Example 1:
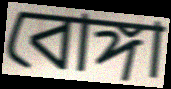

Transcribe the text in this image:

বোঙ্গা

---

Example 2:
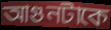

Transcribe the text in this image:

আগুনটাকে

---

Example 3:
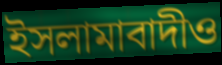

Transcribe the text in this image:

ইসলামাবাদীও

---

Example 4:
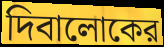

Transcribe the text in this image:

দিবালোকের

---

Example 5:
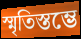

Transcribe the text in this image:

স্মৃতিস্তম্ভে